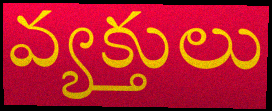
వ్యక్తులు